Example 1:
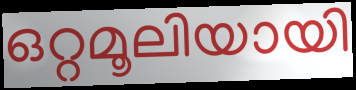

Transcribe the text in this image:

ഒറ്റമൂലിയായി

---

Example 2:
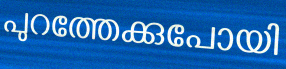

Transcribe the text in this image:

പുറത്തേക്കുപോയി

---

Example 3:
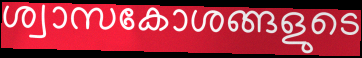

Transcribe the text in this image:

ശ്വാസകോശങ്ങളുടെ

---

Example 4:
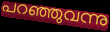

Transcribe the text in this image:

പറഞ്ഞുവന്നു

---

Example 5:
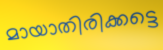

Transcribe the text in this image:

മായാതിരിക്കട്ടെ